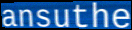
ansuthe